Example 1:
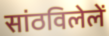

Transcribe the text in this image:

सांठविलेलें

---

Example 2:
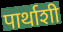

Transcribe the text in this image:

पार्थाशी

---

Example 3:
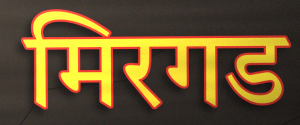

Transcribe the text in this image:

मिरगड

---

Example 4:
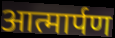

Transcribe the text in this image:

आत्मार्पण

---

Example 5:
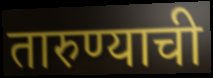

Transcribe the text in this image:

तारुण्याची